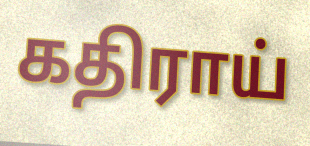
கதிராய்